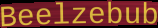
Beelzebub